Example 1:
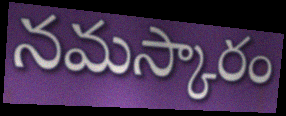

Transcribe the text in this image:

నమస్కారం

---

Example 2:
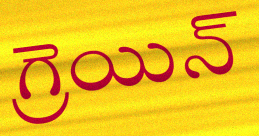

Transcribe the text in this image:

గ్రెయిన్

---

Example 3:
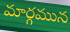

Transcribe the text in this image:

మార్గమున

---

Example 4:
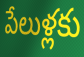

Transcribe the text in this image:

పేలుళ్లకు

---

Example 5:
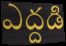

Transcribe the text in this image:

ఎద్దడి